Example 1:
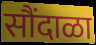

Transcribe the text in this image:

सौंदाळा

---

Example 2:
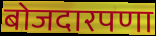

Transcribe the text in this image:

बोजदारपणा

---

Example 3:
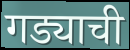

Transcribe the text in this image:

गड्याची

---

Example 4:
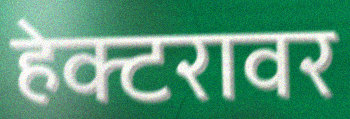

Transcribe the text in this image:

हेक्टरावर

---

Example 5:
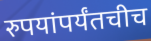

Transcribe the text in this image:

रुपयांपर्यंतचीच